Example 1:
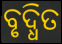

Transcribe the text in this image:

ବୃଦ୍ଧିତ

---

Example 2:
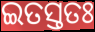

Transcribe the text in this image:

ଇତସ୍ତତଃ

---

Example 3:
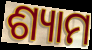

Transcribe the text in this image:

ଶ୍ୟାମ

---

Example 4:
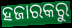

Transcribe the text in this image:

ହଜାରକରୁ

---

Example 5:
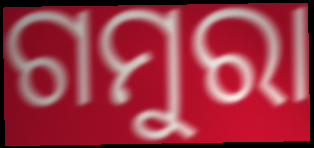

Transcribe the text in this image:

ଗମୁରା